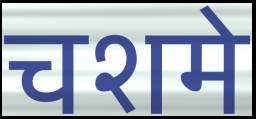
चशमे